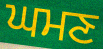
ਘਮਣ